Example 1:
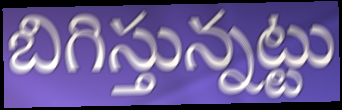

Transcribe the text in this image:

బిగిస్తున్నట్టు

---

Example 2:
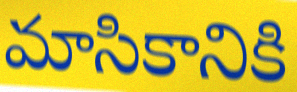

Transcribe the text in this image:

మాసికానికి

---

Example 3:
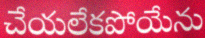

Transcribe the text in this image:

చేయలేకపోయేను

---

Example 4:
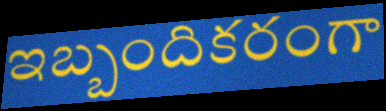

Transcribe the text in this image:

ఇబ్బందికరంగా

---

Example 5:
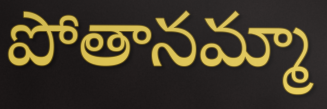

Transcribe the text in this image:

పోతానమ్మా